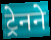
ट्रेनने